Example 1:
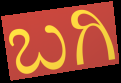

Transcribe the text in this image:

ಬಗಿ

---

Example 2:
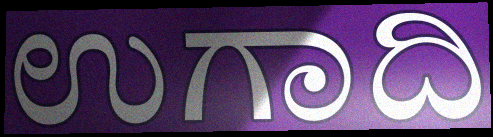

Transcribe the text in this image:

ಉಗಾದಿ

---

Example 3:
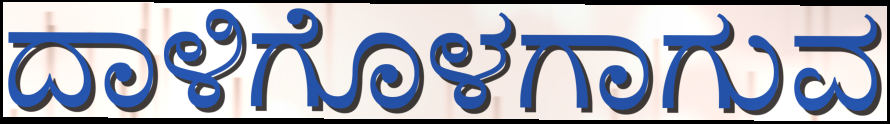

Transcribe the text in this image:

ದಾಳಿಗೊಳಗಾಗುವ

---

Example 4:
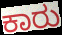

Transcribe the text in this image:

ಕಾರು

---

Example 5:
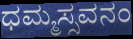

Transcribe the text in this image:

ಧಮ್ಮಸ್ಸವನಂ